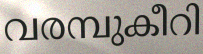
വരമ്പുകീറി